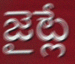
జైట్లే